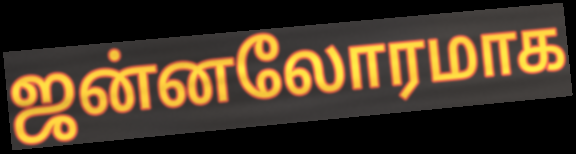
ஜன்னலோரமாக